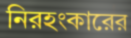
নিরহংকারের